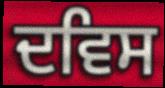
ਦਵਿਸ